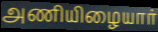
அணியிழையார்